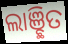
ଲାଞ୍ଛିତ